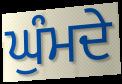
ਘੁੰਮਦੇ